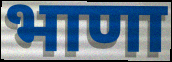
भाणा